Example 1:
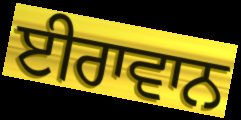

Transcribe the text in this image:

ਈਰਾਵਾਨ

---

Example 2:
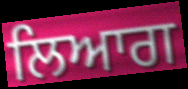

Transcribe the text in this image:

ਲਿਆਗ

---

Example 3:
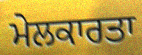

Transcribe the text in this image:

ਮੇਲਕਾਰਤਾ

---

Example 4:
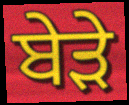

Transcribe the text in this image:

ਬੇੜੇ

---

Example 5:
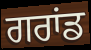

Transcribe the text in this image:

ਗਰਾਂਡ